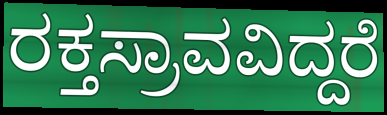
ರಕ್ತಸ್ರಾವವಿದ್ದರೆ